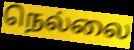
நெல்லை